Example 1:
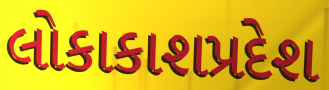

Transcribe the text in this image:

લોકાકાશપ્રદેશ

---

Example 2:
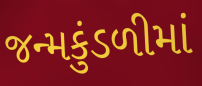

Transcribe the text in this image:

જન્મકુંડળીમાં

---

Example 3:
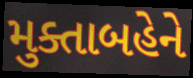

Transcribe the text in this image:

મુક્તાબહેને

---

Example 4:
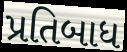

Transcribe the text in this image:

પ્રતિબાધ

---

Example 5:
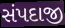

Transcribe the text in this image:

સંપદાજી